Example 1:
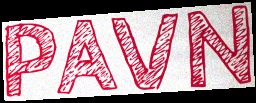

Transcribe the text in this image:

PAVN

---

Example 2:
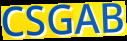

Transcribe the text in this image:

CSGAB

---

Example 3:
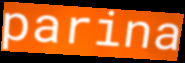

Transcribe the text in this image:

parina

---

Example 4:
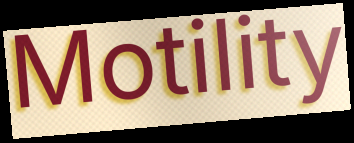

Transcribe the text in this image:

Motility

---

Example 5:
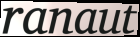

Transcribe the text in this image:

ranaut